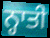
ਨ੍ਹਾਤੀ